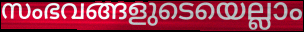
സംഭവങ്ങളുടെയെല്ലാം